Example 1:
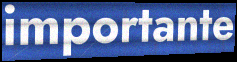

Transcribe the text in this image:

importante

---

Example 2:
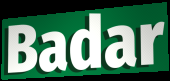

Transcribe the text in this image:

Badar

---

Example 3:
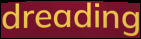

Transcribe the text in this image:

dreading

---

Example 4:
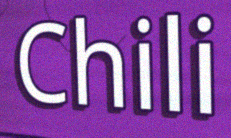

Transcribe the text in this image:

Chili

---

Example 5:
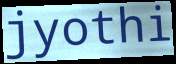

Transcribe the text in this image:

jyothi